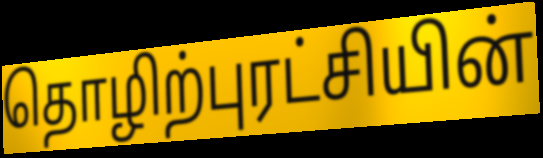
தொழிற்புரட்சியின்